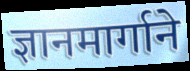
ज्ञानमार्गाने